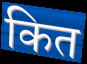
कित